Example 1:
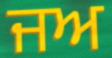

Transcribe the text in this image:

ਜਅ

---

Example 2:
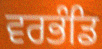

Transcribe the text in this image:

ਵਰਭੰਡਿ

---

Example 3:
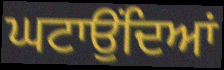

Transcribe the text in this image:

ਘਟਾਉਂਦਿਆਂ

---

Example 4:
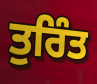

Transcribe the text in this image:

ਤੁਰਿੰਤ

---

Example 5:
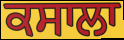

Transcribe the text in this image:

ਕਸਾਲਾ